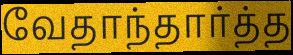
வேதாந்தார்த்த